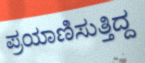
ಪ್ರಯಾಣಿಸುತ್ತಿದ್ದ